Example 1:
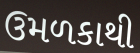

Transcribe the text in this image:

ઉમળકાથી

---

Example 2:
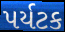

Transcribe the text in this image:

પર્યટક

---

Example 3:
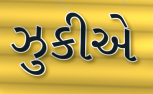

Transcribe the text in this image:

ઝુકીએ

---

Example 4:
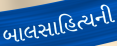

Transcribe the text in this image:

બાલસાહિત્યની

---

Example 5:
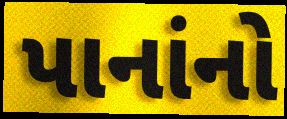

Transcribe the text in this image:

પાનાંનો